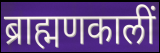
ब्राह्मणकालीं